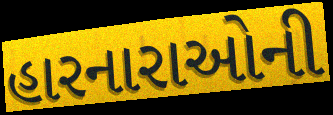
હારનારાઓની